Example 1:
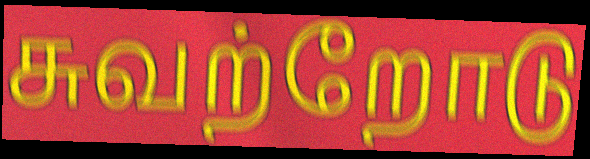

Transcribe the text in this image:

சுவற்றோடு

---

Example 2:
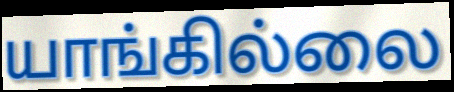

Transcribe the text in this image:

யாங்கில்லை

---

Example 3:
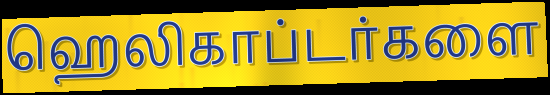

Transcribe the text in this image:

ஹெலிகாப்டர்களை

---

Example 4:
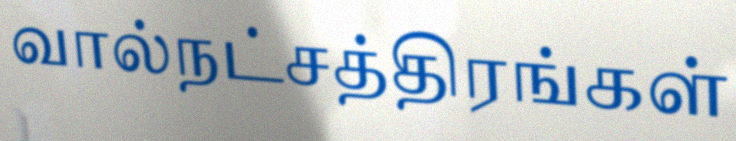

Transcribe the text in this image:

வால்நட்சத்திரங்கள்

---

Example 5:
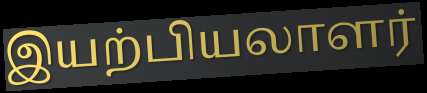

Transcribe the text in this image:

இயற்பியலாளர்